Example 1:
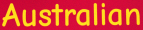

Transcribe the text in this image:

Australian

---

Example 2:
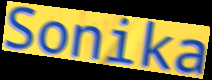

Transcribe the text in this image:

Sonika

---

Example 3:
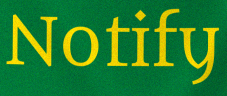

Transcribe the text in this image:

Notify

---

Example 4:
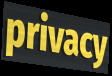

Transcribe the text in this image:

privacy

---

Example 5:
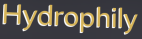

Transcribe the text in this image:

Hydrophily